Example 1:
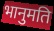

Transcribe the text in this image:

भानुमति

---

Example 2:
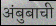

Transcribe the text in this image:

अंबुबाची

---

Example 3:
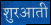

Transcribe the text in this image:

शुरआती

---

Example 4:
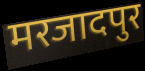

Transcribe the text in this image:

मरजादपुर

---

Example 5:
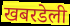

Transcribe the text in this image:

खबरडेली